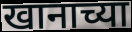
खानाच्या